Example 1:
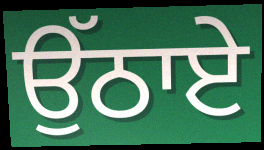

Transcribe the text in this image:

ਉੱਠਾਏ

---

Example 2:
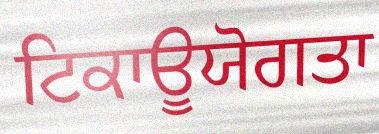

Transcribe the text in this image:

ਟਿਕਾਊਯੋਗਤਾ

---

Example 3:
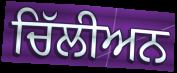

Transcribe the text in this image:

ਚਿੱਲੀਅਨ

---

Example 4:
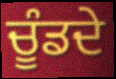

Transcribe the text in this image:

ਚੂੰਡਦੇ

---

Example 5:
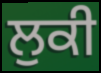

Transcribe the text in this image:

ਲੁਕੀ